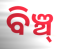
ବିଞ୍ଚ୍